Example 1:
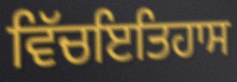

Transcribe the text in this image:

ਵਿੱਚਇਤਿਹਾਸ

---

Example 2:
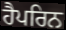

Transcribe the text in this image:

ਹੈਪਰਿਨ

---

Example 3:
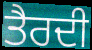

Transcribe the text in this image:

ਤੈਰਦੀ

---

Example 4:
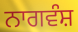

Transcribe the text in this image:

ਨਾਗਵੰਸ਼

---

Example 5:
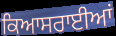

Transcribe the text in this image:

ਕਿਆਸਰਾਈਆਂ